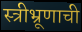
स्त्रीभ्रूणाची